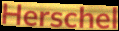
Herschel